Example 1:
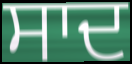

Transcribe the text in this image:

ਸਾਦ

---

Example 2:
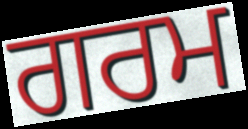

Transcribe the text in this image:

ਗਰਮ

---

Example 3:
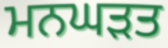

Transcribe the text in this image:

ਮਨਘੜਤ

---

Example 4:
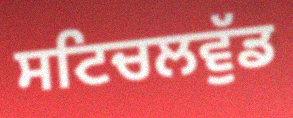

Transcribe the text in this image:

ਸਟਿਚਲਵੁੱਡ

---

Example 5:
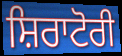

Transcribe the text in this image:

ਸ਼ਿਰਾਟੋਰੀ